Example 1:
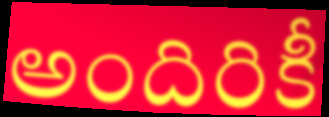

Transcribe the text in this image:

అందిరికీ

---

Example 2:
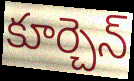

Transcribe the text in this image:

కూర్చెన్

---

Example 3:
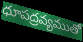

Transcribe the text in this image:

ధూపద్రవ్యముతో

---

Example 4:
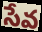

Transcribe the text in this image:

సేవ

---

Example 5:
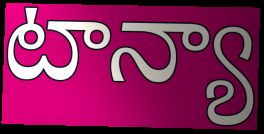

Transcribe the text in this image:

టాన్యా